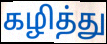
கழித்து